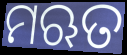
ମଋତ